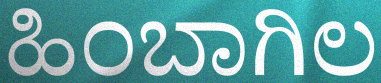
ಹಿಂಬಾಗಿಲ